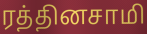
ரத்தினசாமி